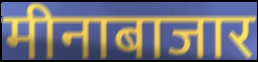
मीनाबाजार